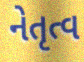
નેતૃત્વ